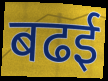
बढई